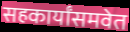
सहकार्यांसमवेत